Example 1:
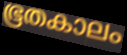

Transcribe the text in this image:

ഭൂതകാലം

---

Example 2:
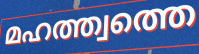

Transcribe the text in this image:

മഹത്ത്വത്തെ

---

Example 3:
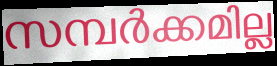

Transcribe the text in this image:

സമ്പർക്കമില്ല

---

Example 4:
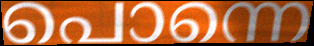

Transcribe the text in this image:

പൊന്നെ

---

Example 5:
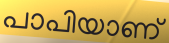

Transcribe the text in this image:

പാപിയാണ്